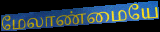
மேலாண்மையே